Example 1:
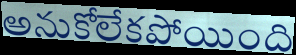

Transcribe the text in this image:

అనుకోలేకపోయింది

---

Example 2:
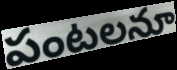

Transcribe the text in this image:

పంటలనూ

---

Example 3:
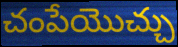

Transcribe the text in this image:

చంపేయొచ్చు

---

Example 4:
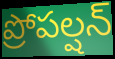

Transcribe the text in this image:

ప్రోపల్షన్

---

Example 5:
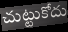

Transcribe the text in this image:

చుట్టుకోదు